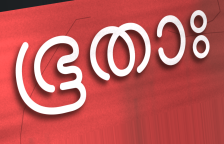
ഭൂതാഃ